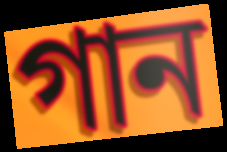
গান